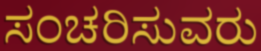
ಸಂಚರಿಸುವರು